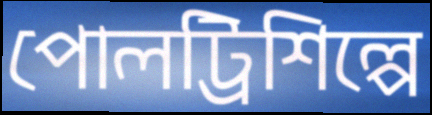
পোলট্রিশিল্পে